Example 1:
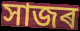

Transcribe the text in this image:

সাজৰ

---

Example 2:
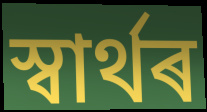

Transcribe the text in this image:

স্বাৰ্থৰ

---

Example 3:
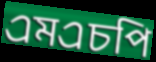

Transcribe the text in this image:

এমএচপি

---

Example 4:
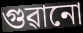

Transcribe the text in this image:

গুৱানো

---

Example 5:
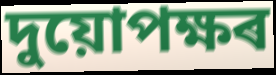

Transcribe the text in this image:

দুয়োপক্ষৰ